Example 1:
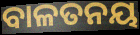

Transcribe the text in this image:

ବାଳତନୟ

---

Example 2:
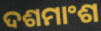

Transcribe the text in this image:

ଦଶମାଂଶ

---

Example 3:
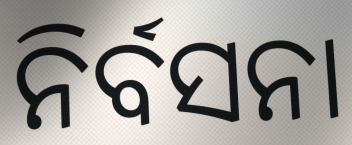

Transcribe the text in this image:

ନିର୍ବସନା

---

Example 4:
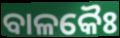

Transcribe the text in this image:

ବାଳକୈଃ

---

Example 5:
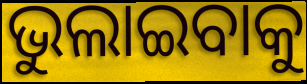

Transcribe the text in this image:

ଭୁଲାଇବାକୁ